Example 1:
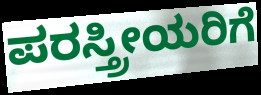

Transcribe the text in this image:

ಪರಸ್ತ್ರೀಯರಿಗೆ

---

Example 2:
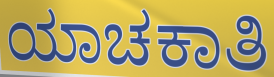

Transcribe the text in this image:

ಯಾಚಕಾತಿ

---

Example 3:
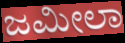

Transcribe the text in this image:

ಜಮೀಲಾ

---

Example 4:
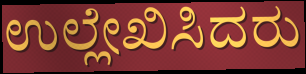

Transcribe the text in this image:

ಉಲ್ಲೇಖಿಸಿದರು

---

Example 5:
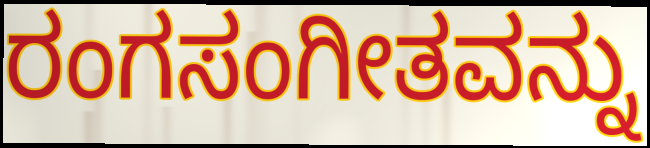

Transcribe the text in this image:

ರಂಗಸಂಗೀತವನ್ನು